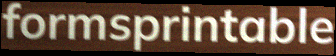
formsprintable